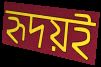
হৃদয়ই